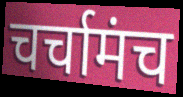
चर्चामंच